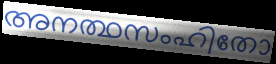
അനത്ഥസംഹിതോ